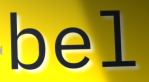
bel